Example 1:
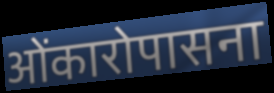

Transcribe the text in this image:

ओंकारोपासना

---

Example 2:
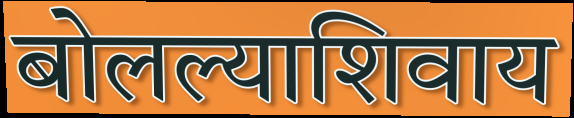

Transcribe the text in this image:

बोलल्याशिवाय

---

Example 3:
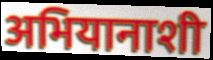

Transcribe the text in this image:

अभियानाशी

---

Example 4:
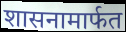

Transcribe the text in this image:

शासनामार्फत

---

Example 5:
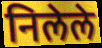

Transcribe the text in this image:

निलेले